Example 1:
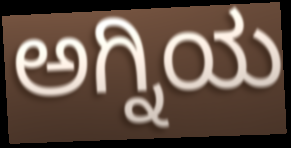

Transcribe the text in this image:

ಅಗ್ನಿಯ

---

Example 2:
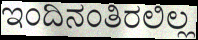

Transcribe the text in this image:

ಇಂದಿನಂತಿರಲಿಲ್ಲ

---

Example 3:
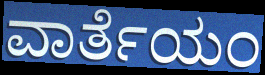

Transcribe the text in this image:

ವಾರ್ತೆಯಂ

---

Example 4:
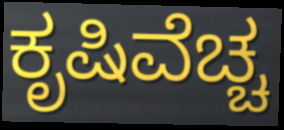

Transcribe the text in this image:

ಕೃಷಿವೆಚ್ಚ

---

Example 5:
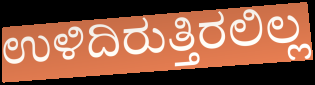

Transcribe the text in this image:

ಉಳಿದಿರುತ್ತಿರಲಿಲ್ಲ